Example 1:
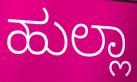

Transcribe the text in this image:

ಹುಲ್ಲಾ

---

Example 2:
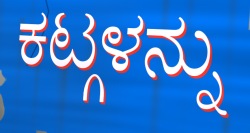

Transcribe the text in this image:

ಕಟ್ಗಳನ್ನು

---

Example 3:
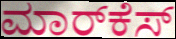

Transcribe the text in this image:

ಮಾರ್‌ಕೆಸ್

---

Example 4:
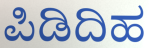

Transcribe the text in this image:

ಪಿಡಿದಿಹ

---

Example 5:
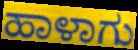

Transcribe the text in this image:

ಹಾಳಾಗು